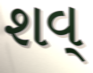
શવ્